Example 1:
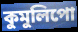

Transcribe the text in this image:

কুমুলিপো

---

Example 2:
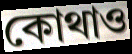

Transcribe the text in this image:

কোথাও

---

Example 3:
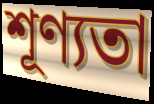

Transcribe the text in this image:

শূণ্যতা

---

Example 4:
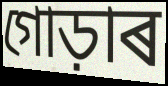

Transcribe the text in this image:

গোড়াৰ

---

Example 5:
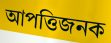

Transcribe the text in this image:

আপত্তিজনক